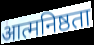
आत्मनिष्ठता